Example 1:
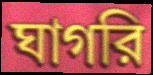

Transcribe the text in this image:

ঘাগরি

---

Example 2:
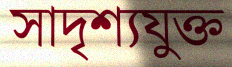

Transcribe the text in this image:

সাদৃশ্যযুক্ত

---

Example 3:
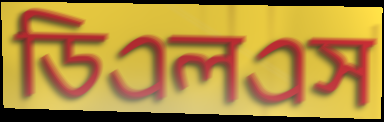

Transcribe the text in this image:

ডিএলএস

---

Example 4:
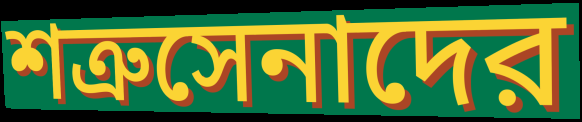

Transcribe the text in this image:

শত্রুসেনাদের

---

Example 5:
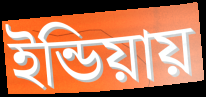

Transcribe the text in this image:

ইন্ডিয়ায়